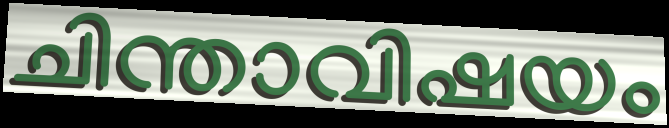
ചിന്താവിഷയം